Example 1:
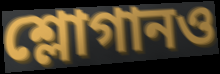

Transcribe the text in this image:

শ্লোগানও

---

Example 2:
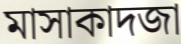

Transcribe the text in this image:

মাসাকাদজা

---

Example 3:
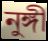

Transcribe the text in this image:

নুঙ্গী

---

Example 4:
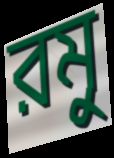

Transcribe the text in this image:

রমু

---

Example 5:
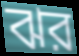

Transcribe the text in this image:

ঝর